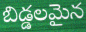
బిడ్డలమైన